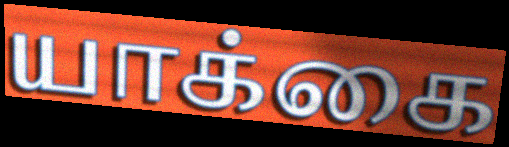
யாக்கை